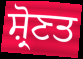
ਸ਼੍ਰੋਣਤ